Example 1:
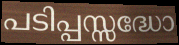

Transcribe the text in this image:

പടിപ്പസ്സദ്ധോ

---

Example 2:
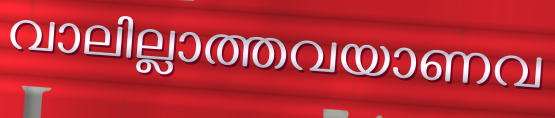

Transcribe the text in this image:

വാലില്ലാത്തവയാണവ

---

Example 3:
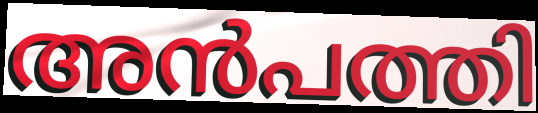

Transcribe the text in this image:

അൻപത്തി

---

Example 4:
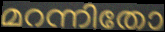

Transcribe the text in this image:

മറന്നിതോ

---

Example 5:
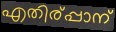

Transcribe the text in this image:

എതിര്പ്പാന്